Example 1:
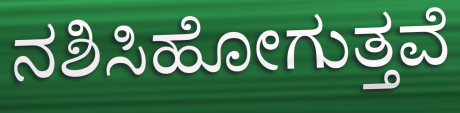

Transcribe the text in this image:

ನಶಿಸಿಹೋಗುತ್ತವೆ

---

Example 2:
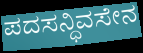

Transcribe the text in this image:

ಪದಸನ್ಧಿವಸೇನ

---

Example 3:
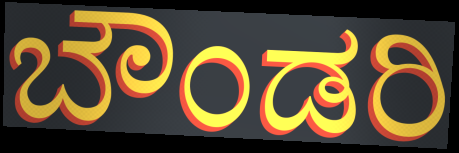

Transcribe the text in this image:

ಬೌಂಡರಿ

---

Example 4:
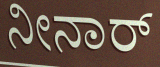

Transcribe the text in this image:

ನೀನಾರ್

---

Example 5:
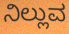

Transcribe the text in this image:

ನಿಲ್ಲುವ